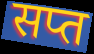
सप्त